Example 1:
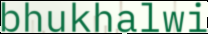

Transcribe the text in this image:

bhukhalwi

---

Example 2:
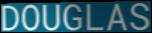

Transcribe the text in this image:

DOUGLAS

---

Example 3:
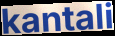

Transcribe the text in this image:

kantali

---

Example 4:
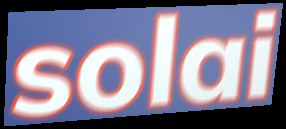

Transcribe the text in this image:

solai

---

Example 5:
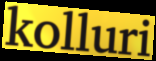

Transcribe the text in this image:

kolluri